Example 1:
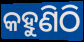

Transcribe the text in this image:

କହୁଣିଠି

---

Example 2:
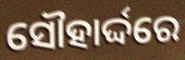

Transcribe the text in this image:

ସୌହାର୍ଦ୍ଦରେ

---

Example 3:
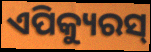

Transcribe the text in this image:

ଏପିକ୍ୟୁରସ୍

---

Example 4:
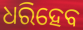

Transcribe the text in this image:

ଧରିହେବ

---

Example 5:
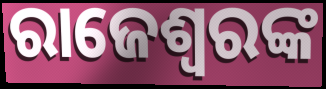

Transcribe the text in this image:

ରାଜେଶ୍ୱରଙ୍କ